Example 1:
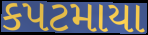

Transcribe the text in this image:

કપટમાયા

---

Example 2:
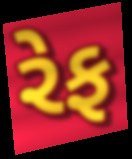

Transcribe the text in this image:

રેફ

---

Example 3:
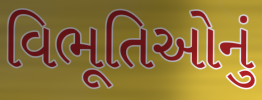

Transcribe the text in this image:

વિભૂતિઓનું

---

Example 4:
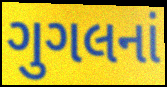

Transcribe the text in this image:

ગુગલનાં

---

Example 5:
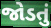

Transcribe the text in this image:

જોડતું